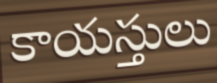
కాయస్తులు